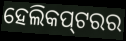
ହେଲିକପ୍‌ଟରର